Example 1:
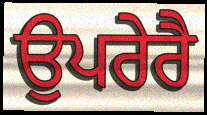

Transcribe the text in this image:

ਉਪਰੇਰੈ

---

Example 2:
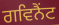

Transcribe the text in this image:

ਗਵਿਨੈਂਟ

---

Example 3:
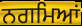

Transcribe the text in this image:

ਨਗਮਿਆਂ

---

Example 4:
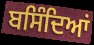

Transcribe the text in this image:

ਬਸਿੰਦਿਆਂ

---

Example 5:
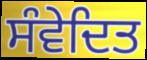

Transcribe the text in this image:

ਸੰਵੇਦਿਤ